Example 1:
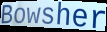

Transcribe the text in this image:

Bowsher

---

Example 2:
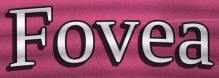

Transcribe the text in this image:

Fovea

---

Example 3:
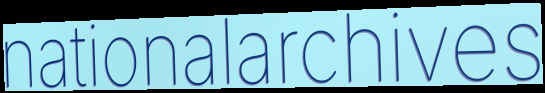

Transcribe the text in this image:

nationalarchives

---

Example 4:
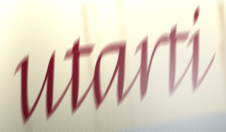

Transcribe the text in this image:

utarti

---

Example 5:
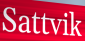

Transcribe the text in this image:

Sattvik